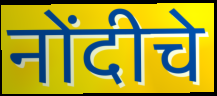
नोंदीचे